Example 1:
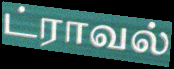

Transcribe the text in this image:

ட்ராவல்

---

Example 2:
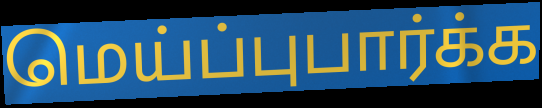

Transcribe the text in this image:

மெய்ப்புபார்க்க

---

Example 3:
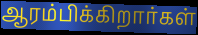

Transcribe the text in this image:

ஆரம்பிக்கிறார்கள்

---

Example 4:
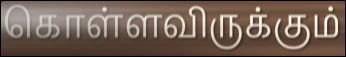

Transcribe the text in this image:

கொள்ளவிருக்கும்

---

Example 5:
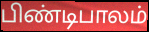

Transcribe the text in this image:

பிண்டிபாலம்